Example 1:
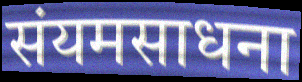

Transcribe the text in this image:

संयमसाधना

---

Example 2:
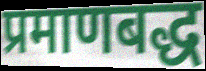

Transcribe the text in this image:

प्रमाणबद्ध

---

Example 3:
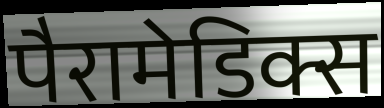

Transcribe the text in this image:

पैरामेडिक्स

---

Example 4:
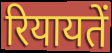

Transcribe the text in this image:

रियायतें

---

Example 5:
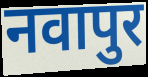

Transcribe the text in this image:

नवापुर